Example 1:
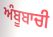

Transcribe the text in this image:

ਅੰਬੂਬਾਚੀ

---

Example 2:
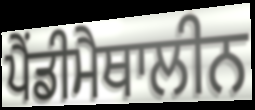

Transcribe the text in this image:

ਪੈਂਡੀਮੈਥਾਲੀਨ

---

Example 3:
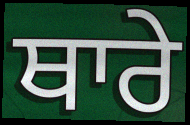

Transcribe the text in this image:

ਥਾਰੇ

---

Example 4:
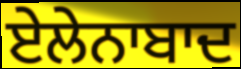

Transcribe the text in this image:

ਏਲੇਨਾਬਾਦ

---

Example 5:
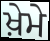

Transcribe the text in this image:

ਖ਼ੇਮੇ